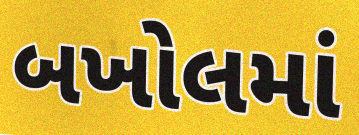
બખોલમાં